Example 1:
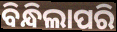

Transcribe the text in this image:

ବିନ୍ଧିଲାପରି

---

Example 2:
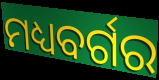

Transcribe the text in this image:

ମଧ୍ୟବର୍ଗର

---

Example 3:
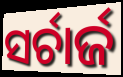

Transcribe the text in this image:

ସର୍ଚାର୍ଜ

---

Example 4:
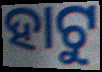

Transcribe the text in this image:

ହାଟୁ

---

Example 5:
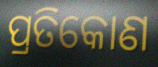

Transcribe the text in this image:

ପ୍ରତିକୋଣ